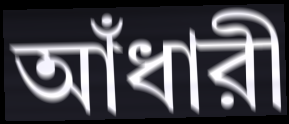
আঁধারী